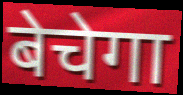
बेचेगा